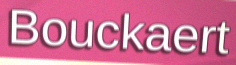
Bouckaert